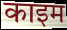
काइम